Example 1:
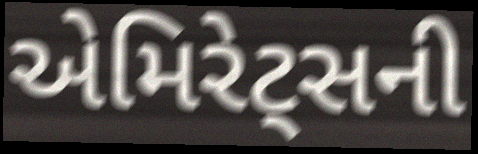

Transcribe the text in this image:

એમિરેટ્સની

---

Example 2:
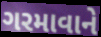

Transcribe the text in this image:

ગરમાવાને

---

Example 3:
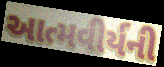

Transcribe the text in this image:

આત્મવીર્યની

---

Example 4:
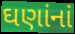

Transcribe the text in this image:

ઘણાંનાં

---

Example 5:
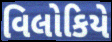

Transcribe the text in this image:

વિલોકિયે